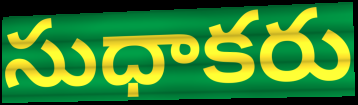
సుధాకరు